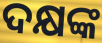
ଦକ୍ଷଙ୍କ